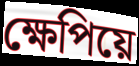
ক্ষেপিয়ে